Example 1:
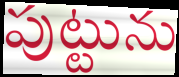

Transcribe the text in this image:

పుట్టును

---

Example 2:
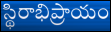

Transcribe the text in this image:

స్థిరాభిప్రాయం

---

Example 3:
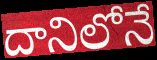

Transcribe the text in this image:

దానిలోనే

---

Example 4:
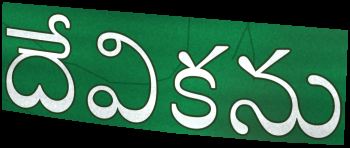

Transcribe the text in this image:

దేవికను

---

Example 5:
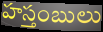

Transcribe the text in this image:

హస్తంబులు